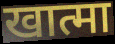
खात्मा